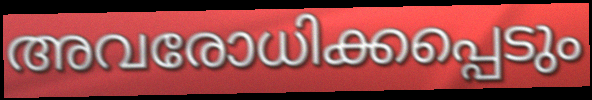
അവരോധിക്കപ്പെടും